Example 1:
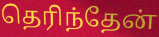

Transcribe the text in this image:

தெரிந்தேன்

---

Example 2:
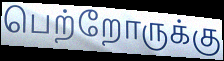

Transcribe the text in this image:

பெற்றோருக்கு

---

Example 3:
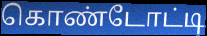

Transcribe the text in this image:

கொண்டோட்டி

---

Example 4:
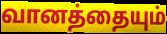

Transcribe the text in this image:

வானத்தையும்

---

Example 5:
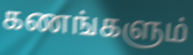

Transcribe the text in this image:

கணங்களும்